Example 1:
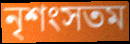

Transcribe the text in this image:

নৃশংসতম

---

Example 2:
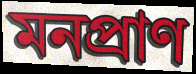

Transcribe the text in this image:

মনপ্রাণ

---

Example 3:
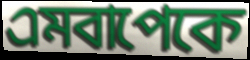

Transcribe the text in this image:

এমবাপেকে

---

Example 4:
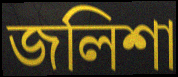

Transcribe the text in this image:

জলিশা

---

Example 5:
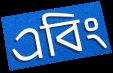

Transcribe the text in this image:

এবিং